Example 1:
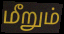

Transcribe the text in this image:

மீறும்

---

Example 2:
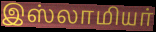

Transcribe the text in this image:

இஸ்லாமியர்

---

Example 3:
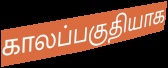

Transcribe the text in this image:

காலப்பகுதியாக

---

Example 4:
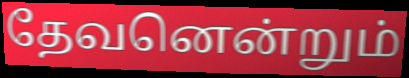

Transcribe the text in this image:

தேவனென்றும்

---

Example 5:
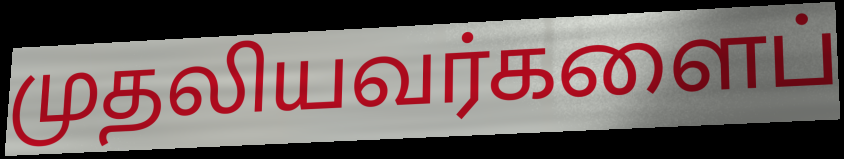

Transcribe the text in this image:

முதலியவர்களைப்